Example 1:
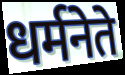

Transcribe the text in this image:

धर्मनेते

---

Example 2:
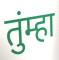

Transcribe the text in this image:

तुंम्हा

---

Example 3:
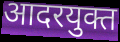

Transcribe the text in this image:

आदरयुक्त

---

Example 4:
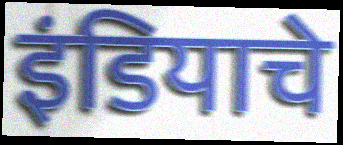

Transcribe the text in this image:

इंडियाचे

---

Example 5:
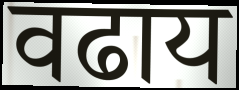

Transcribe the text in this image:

वढाय